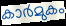
കാർമുകം